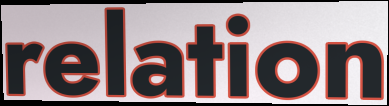
relation